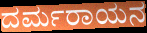
ದರ್ಮರಾಯನ